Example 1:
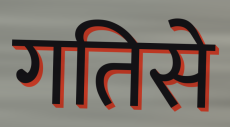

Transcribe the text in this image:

गतिसे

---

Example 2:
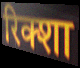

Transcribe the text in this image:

रिक्‍शा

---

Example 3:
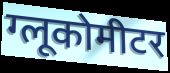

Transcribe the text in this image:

ग्लूकोमीटर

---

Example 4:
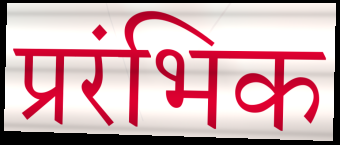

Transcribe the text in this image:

प्ररंभिक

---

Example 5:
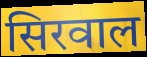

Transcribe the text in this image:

सिरवाल